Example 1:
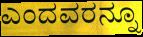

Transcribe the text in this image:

ಎಂದವರನ್ನೂ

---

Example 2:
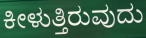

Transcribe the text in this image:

ಕೀಳುತ್ತಿರುವುದು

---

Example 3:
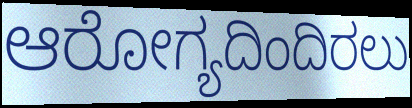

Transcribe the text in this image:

ಆರೋಗ್ಯದಿಂದಿರಲು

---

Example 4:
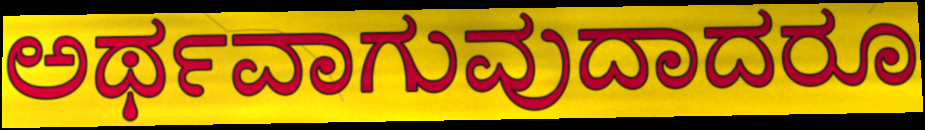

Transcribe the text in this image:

ಅರ್ಥವಾಗುವುದಾದರೂ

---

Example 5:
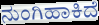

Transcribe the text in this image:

ನುಂಗಿಹಾಕಿದೆ